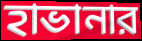
হাভানার